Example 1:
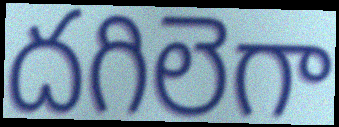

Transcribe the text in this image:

దగిలెగా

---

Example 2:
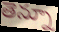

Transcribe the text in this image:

తెన్నూ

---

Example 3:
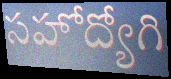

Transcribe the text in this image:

సహోద్యోగి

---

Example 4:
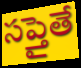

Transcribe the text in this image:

సప్తైతే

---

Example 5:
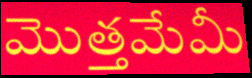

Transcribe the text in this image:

మొత్తమేమీ